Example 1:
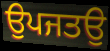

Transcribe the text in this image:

ਉਪਜਤਉ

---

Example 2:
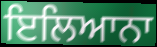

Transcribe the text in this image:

ਇਲਿਆਨਾ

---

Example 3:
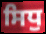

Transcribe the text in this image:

ਸਿਧੁ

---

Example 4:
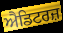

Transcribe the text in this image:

ਐਡਿਟਰਜ਼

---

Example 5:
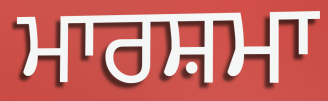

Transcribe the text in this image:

ਮਾਰਸ਼ਮਾ